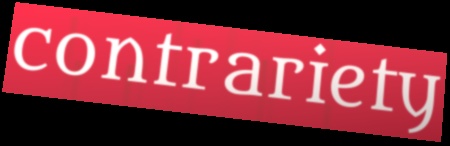
contrariety